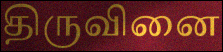
திருவினை